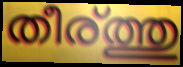
തീര്ത്തു